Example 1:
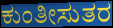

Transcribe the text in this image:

ಕುಂತೀಸುತರ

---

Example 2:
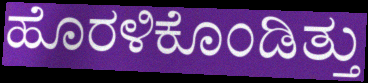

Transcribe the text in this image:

ಹೊರಳಿಕೊಂಡಿತ್ತು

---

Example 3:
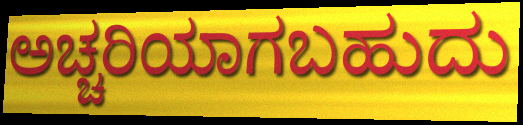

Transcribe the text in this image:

ಅಚ್ಚರಿಯಾಗಬಹುದು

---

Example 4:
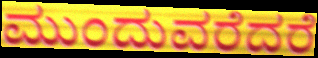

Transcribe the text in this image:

ಮುಂದುವರೆದರೆ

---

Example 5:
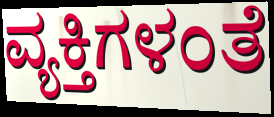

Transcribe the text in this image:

ವ್ಯಕ್ತಿಗಳಂತೆ